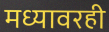
मध्यावरही